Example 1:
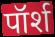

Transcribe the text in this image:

पॉर्श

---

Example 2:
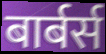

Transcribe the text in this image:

बार्बर्स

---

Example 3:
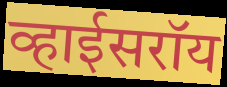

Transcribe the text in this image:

व्हाईसरॉय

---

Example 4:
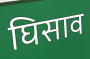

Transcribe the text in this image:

घिसाव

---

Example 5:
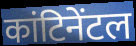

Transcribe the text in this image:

कांटिनेंटल